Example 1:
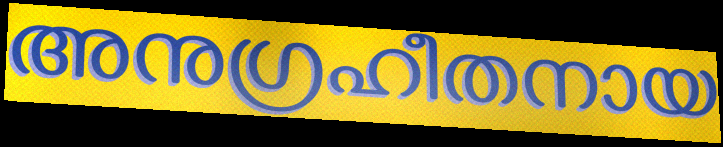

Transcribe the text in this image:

അനുഗ്രഹീതനായ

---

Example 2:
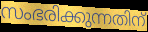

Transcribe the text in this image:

സംഭരിക്കുന്നതിന്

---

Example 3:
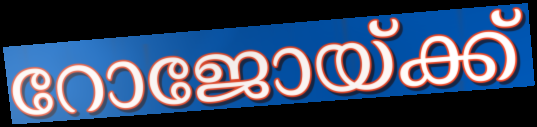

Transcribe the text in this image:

റോജോയ്ക്ക്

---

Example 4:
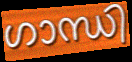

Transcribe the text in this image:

ഗാന്ധി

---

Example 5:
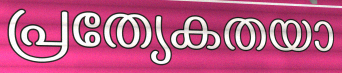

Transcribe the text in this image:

പ്രത്യേകതയാ